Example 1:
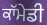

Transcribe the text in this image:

ਕਾੱਮੇਡੀ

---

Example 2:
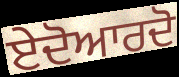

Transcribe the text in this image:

ਏਦੋਆਰਦੋ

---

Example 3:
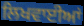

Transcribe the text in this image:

ਲਿਖਵਾਈਆਂ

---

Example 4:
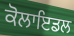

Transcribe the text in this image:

ਕੋਲਾਇਡਲ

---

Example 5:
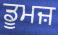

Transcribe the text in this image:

ਡੂਮਜ਼